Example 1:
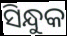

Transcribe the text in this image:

ସିନ୍ଧୁକ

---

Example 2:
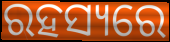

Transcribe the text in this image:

ରହସ୍ୟରେ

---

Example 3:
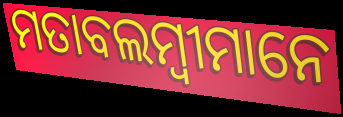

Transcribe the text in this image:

ମତାବଲମ୍ବୀମାନେ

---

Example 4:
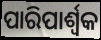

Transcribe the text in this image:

ପାରିପାର୍ଶ୍ବକ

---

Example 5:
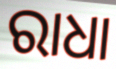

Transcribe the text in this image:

ରାଧା